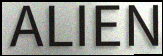
ALIEN